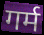
गर्म